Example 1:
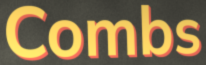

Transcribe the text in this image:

Combs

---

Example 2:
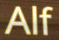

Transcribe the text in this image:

Alf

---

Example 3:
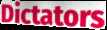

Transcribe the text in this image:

Dictators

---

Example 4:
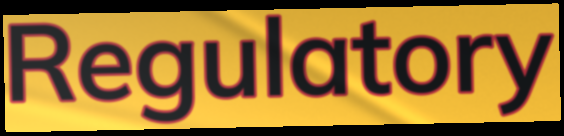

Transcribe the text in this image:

Regulatory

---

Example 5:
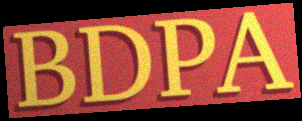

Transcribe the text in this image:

BDPA